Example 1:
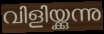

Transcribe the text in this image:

വിളിയ്ക്കുന്നു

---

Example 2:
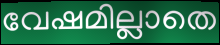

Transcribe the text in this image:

വേഷമില്ലാതെ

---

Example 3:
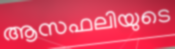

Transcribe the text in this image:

ആസഫലിയുടെ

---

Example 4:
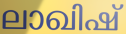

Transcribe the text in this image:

ലാഖിഷ്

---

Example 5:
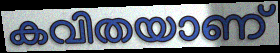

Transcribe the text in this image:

കവിതയാണ്